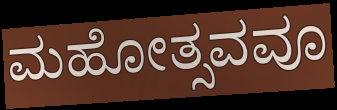
ಮಹೋತ್ಸವವೂ